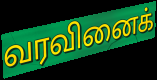
வரவினைக்